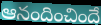
ఆనందించిందే